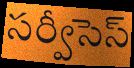
సర్వీసెస్